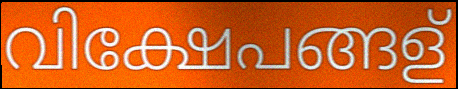
വിക്ഷേപങ്ങള്